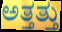
ಅತ್ತತ್ತು